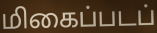
மிகைப்படப்